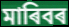
মাৰিবৰ